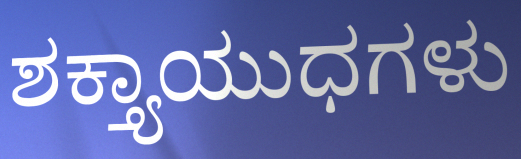
ಶಕ್ತ್ಯಾಯುಧಗಳು